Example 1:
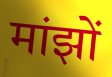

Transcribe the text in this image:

मांझों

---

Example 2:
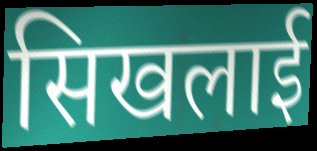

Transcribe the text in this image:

सिखलाई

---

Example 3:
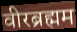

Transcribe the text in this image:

वीरब्रह्मम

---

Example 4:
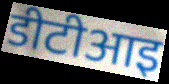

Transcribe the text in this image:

डीटीआइ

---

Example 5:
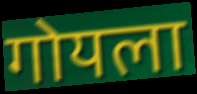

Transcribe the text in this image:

गोयला